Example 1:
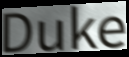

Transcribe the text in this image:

Duke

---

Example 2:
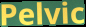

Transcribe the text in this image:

Pelvic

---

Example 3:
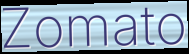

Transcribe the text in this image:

Zomato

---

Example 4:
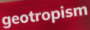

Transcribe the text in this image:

geotropism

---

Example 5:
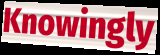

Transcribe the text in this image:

Knowingly